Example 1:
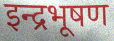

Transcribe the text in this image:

इन्द्रभूषण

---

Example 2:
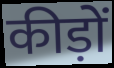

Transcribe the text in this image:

कीड़ों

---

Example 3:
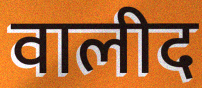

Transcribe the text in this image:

वालीद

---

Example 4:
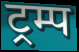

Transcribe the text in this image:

ट्रम्‍प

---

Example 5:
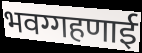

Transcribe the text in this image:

भवग्गहणाई